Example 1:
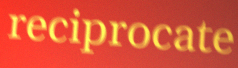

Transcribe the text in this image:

reciprocate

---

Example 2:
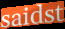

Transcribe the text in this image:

saidst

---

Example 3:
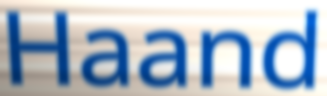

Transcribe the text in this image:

Haand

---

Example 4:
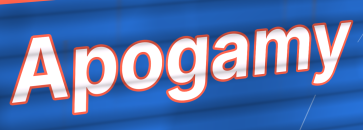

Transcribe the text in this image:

Apogamy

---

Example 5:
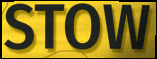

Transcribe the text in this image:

STOW